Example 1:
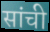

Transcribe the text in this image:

सांची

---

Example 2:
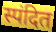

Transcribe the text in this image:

स्पंदित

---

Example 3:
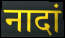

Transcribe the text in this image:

नादां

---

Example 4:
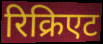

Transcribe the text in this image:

रिक्रिएट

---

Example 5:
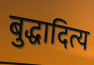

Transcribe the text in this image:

बुद्धादित्य